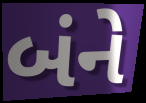
બંને